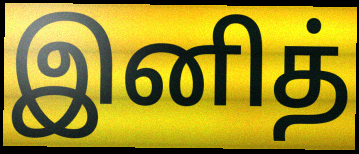
இனித்